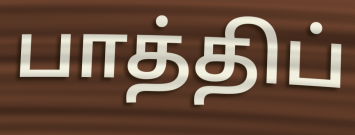
பாத்திப்